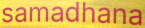
samadhana